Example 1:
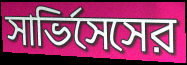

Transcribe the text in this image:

সার্ভিসেসের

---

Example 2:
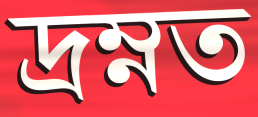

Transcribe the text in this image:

দ্রম্নত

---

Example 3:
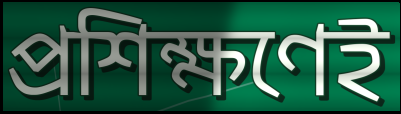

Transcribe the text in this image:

প্রশিক্ষণেই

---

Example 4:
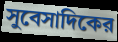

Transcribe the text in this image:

সুবেসাদিকের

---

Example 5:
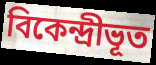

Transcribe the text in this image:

বিকেন্দ্রীভূত